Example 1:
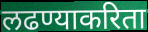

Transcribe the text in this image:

लढण्याकरिता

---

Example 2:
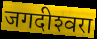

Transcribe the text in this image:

जगदीश्वरा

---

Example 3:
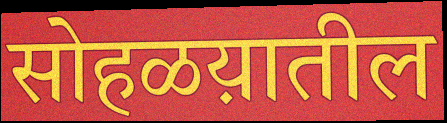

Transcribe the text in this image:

सोहळय़ातील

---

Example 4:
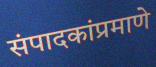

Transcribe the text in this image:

संपादकांप्रमाणे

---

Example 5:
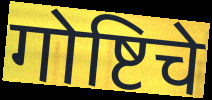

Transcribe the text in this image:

गोष्टिचे